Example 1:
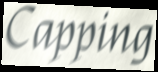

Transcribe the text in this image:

Capping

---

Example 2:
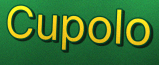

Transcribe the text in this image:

Cupolo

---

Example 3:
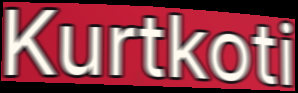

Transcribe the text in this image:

Kurtkoti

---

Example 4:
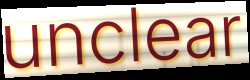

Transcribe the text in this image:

unclear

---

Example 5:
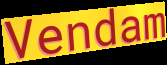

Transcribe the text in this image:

Vendam